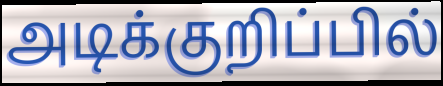
அடிக்குறிப்பில்